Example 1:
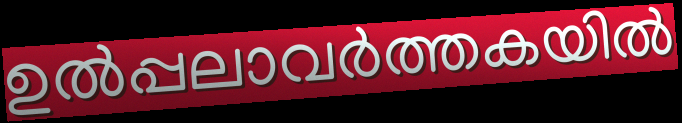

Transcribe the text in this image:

ഉൽപ്പലാവർത്തകയിൽ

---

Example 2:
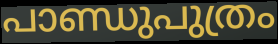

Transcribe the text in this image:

പാണ്ഡുപുത്രം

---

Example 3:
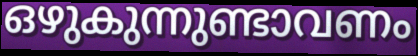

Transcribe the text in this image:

ഒഴുകുന്നുണ്ടാവണം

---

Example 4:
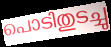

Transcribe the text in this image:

പൊടിതുടച്ചു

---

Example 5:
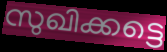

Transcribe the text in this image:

സുഖിക്കട്ടെ